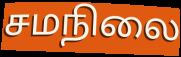
சமநிலை